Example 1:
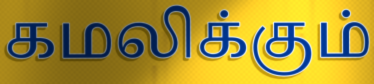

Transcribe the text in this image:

கமலிக்கும்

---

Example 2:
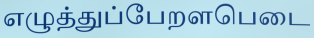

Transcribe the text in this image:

எழுத்துப்பேறளபெடை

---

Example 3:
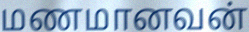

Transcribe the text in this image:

மணமானவன்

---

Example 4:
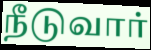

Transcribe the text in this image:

நீடுவார்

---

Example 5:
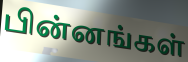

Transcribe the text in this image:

பின்னங்கள்